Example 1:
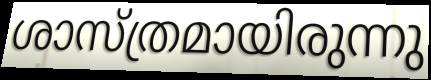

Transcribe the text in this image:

ശാസ്ത്രമായിരുന്നു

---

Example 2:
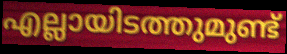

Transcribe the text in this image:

എല്ലായിടത്തുമുണ്ട്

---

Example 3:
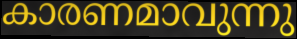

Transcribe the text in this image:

കാരണമാവുന്നു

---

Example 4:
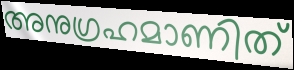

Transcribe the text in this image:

അനുഗ്രഹമാണിത്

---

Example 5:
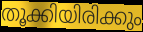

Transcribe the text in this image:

തൂക്കിയിരിക്കും